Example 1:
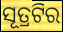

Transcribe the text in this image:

ସୂତ୍ରଟିର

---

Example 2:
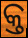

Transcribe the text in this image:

କ୍ତ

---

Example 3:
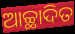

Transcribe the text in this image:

ଆଚ୍ଛାଦିତ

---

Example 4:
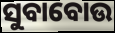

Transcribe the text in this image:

ସୁବାବୋଉ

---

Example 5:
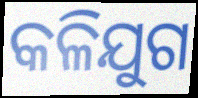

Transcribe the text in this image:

କଳିଯୁଗ